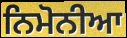
ਨਿਮੋਨੀਆ